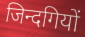
जिन्दगियों